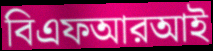
বিএফআরআই